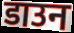
डाउन